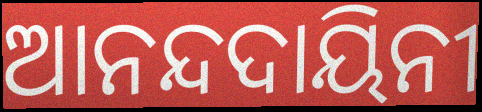
ଆନନ୍ଦଦାୟିନୀ